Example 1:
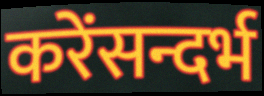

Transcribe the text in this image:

करेंसन्दर्भ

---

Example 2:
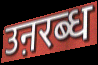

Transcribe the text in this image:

उऩरब्ध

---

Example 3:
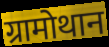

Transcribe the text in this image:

ग्रामोथान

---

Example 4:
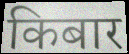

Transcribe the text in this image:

किबार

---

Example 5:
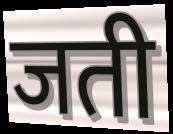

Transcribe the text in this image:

जती